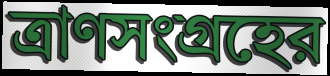
ত্রাণসংগ্রহের